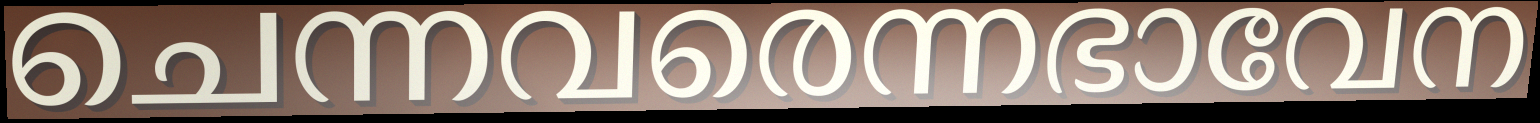
ചെന്നവരെന്നഭാവേന